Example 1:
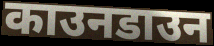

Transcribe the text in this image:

काउनडाउन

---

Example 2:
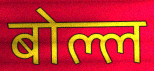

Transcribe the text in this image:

बोल्ल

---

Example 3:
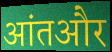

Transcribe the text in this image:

आंतऔर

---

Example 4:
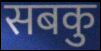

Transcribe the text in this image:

सबकु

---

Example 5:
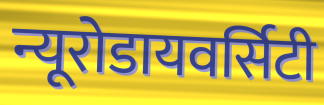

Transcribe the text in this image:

न्यूरोडायवर्सिटी